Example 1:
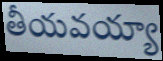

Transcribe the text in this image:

తీయవయ్యా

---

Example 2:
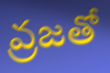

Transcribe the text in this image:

వ్రజతో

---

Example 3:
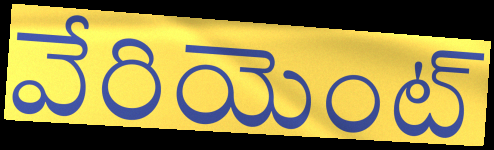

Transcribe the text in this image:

వేరియెంట్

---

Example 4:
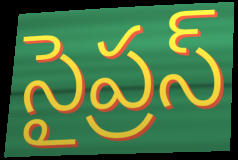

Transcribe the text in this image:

సైప్రస్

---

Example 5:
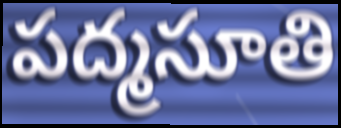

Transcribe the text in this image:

పద్మసూతి